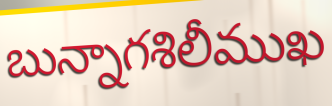
బున్నాగశిలీముఖ